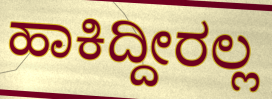
ಹಾಕಿದ್ದೀರಲ್ಲ